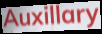
Auxillary